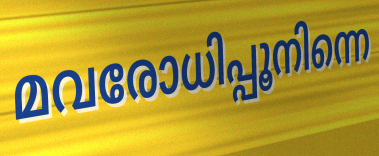
മവരോധിപ്പൂനിന്നെ